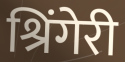
श्रिंगेरी